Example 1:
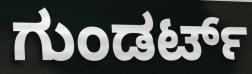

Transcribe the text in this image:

ಗುಂಡರ್ಟ್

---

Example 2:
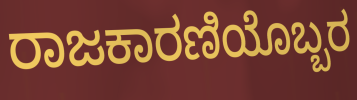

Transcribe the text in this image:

ರಾಜಕಾರಣಿಯೊಬ್ಬರ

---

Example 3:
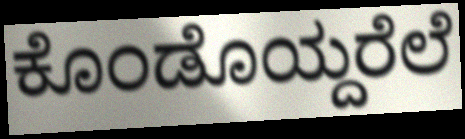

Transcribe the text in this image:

ಕೊಂಡೊಯ್ದರೆಲೆ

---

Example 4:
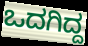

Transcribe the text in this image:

ಒದಗಿದ್ದ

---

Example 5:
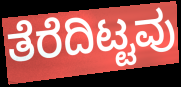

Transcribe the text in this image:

ತೆರೆದಿಟ್ಟವು